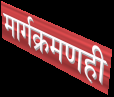
मार्गक्रमणही